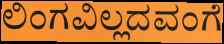
ಲಿಂಗವಿಲ್ಲದವಂಗೆ